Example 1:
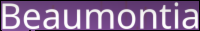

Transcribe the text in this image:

Beaumontia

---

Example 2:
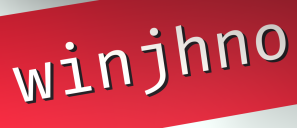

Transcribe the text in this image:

winjhno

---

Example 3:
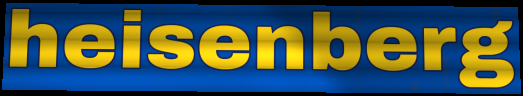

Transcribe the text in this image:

heisenberg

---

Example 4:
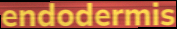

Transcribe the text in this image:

endodermis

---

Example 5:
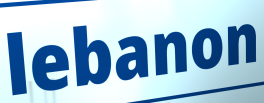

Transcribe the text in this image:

lebanon